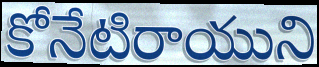
కోనేటిరాయుని